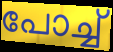
പോച്ച്